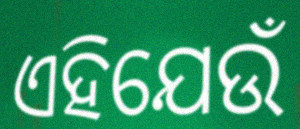
ଏହିଯେଉଁ